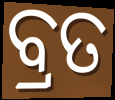
ବ୍ରତ